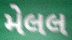
મેલલ